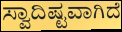
ಸ್ವಾದಿಷ್ಟವಾಗಿದೆ